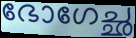
ഭോഗേച്ഛ